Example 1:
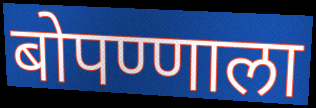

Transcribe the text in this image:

बोपण्णाला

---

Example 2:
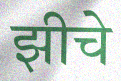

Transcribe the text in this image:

झीचे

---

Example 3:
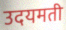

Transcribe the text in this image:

उदयमती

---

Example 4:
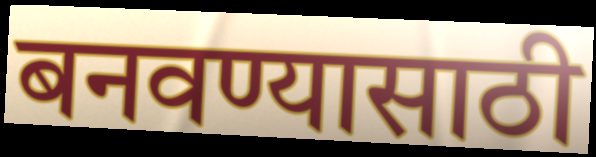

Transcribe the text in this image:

बनवण्‍यासाठी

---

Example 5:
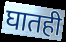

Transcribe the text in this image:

घातही